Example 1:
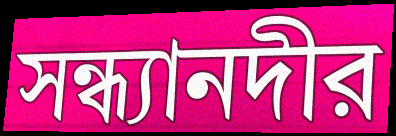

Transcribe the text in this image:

সন্ধ্যানদীর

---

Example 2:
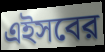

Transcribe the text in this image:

এইসবের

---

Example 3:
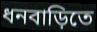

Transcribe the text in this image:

ধনবাড়িতে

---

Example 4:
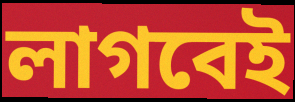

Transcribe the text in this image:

লাগবেই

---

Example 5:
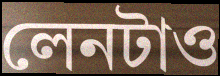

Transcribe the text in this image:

লেনটাও